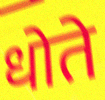
धोते